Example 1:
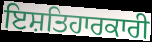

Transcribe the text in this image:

ਇਸ਼ਤਿਹਾਰਕਾਰੀ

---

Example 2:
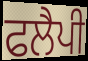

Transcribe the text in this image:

ਫਲੈਪੀ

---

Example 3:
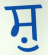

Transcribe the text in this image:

ਸ਼ੁ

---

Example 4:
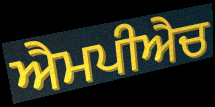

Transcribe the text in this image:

ਐਮਪੀਐਚ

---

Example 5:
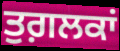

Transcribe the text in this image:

ਤੁਗ਼ਲਕਾਂ